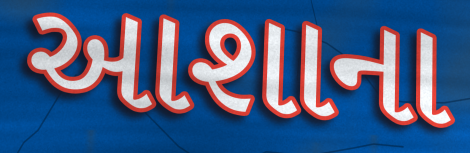
આશાના